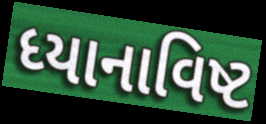
ધ્યાનાવિષ્ટ